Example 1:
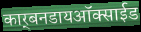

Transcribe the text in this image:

कार्बनडायऑक्साईड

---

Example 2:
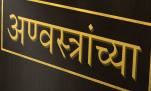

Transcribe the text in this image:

अण्वस्त्रांच्या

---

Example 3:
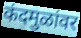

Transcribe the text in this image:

कंदमुळांवर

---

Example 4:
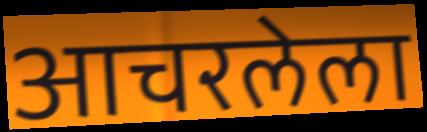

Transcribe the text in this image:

आचरलेला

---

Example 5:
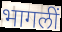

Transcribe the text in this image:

भागलीं